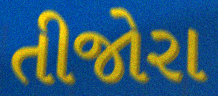
તીજોરા